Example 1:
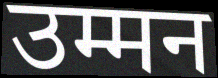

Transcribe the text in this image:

उम्मन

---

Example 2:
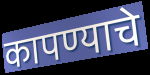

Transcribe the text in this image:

कापण्याचे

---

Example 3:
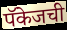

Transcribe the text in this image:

पॅकेजची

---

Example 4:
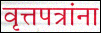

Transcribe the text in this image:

वृत्तपत्रांना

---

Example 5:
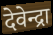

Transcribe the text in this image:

देवेन्द्रा